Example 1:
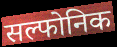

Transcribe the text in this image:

सल्फोनिक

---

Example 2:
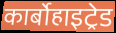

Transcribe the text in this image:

कार्बोहाइट्रेड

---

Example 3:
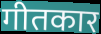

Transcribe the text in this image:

गीतकार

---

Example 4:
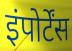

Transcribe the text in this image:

इंपोर्टेंस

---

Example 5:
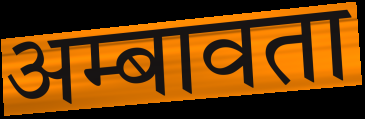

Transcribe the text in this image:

अम्बावता